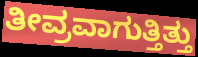
ತೀವ್ರವಾಗುತ್ತಿತ್ತು